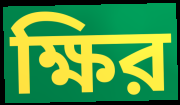
ক্ষির